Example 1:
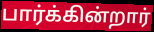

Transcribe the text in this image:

பார்க்கின்றார்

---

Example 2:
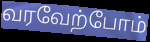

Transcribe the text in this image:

வரவேற்போம்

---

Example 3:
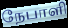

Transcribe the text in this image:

நேபாளி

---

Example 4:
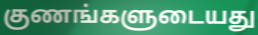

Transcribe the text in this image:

குணங்களுடையது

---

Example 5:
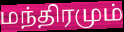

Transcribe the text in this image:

மந்திரமும்